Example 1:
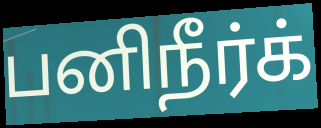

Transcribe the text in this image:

பனிநீர்க்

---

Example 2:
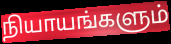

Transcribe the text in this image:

நியாயங்களும்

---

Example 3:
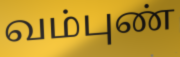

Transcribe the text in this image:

வம்புண்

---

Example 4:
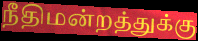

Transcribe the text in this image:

நீதிமன்றத்துக்கு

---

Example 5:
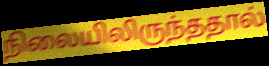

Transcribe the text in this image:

நிலையிலிருந்ததால்